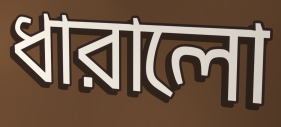
ধারালো